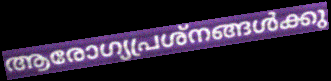
ആരോഗ്യപ്രശ്നങ്ങൾക്കു